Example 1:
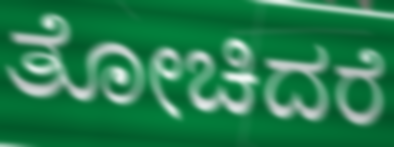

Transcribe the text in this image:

ತೋಚಿದರೆ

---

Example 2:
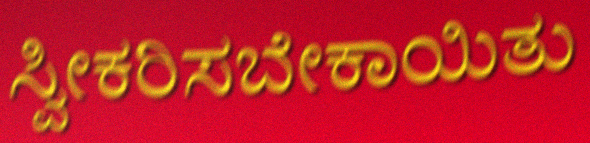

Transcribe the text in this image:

ಸ್ವೀಕರಿಸಬೇಕಾಯಿತು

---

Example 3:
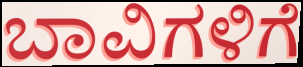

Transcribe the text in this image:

ಬಾವಿಗಳಿಗೆ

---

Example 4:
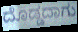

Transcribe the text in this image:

ದೊಡ್ಡದಾಗು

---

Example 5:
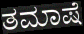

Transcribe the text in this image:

ತಮಾಷೆ